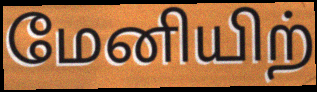
மேனியிற்